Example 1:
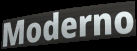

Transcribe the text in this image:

Moderno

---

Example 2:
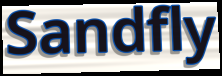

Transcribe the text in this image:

Sandfly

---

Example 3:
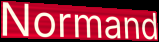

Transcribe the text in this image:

Normand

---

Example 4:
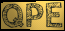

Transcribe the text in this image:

QPE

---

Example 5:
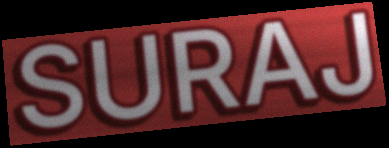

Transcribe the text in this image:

SURAJ